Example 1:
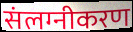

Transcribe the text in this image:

संलग्‍नीकरण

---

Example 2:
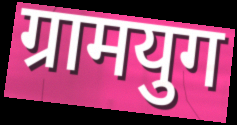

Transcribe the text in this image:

ग्रामयुग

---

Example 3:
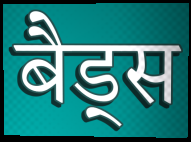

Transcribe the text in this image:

बैड्स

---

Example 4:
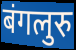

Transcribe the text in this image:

बंगलुरु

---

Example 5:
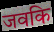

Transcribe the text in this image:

जवकि